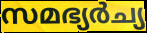
സമഭ്യർച്യ